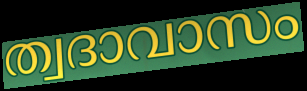
ത്വദാവാസം